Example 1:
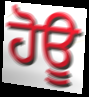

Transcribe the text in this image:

ਹੋਊ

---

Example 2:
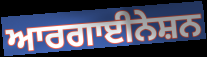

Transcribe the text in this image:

ਆਰਗਾਈਨੇਸ਼ਨ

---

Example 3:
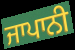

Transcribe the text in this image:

ਜਾਪਾਨੀ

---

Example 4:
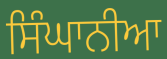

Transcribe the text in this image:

ਸਿੰਘਾਨੀਆ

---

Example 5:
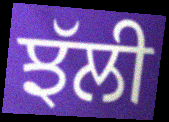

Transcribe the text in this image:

ਝੱਲੀ